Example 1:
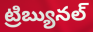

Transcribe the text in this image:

ట్రిబ్యునల్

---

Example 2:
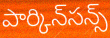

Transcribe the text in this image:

పార్కిన్‌సన్స్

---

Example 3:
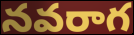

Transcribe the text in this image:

నవరాగ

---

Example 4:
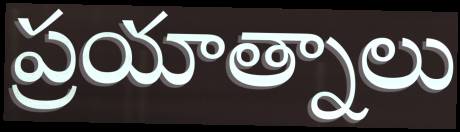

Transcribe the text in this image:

ప్రయాత్నాలు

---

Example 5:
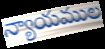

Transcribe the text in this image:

న్యాయముల